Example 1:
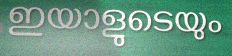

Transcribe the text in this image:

ഇയാളുടെയും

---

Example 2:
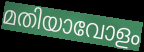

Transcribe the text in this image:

മതിയാവോളം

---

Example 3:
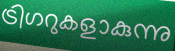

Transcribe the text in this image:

ട്രിഗറുകളാകുന്നു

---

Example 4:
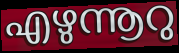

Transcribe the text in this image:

എഴുന്നൂറു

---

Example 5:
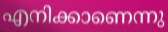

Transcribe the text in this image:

എനിക്കാണെന്നു